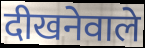
दीखनेवाले